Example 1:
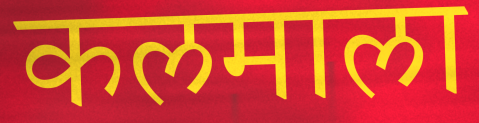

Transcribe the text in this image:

कलमाला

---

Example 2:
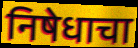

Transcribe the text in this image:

निषेधाचा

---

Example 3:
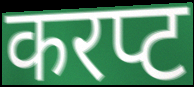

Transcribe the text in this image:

करप्ट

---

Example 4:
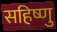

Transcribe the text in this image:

सहिष्णु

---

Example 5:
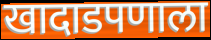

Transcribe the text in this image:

खादाडपणाला